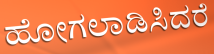
ಹೋಗಲಾಡಿಸಿದರೆ